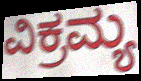
ವಿಕ್ರಮ್ಯ